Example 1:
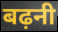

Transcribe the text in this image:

बढ़नी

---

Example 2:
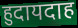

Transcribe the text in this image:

हुदायदाह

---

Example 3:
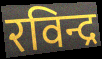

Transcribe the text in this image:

रविन्द्र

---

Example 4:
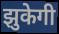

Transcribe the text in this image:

झुकेगी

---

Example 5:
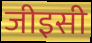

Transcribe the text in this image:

जीइसी